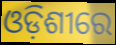
ଓଡ଼ିଶୀରେ